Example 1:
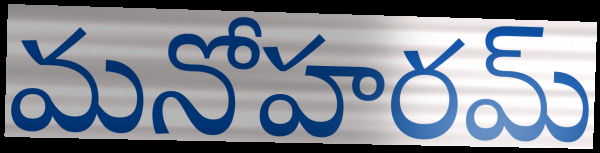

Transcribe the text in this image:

మనోహరమ్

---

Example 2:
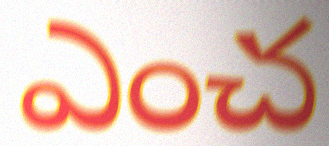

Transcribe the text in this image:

ఎంచ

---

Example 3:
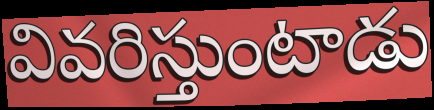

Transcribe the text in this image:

వివరిస్తుంటాడు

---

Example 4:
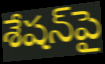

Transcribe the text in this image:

శేషన్‌పై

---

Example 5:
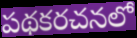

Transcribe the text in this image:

పథకరచనలో